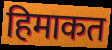
हिमाकत